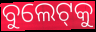
ବୁଲେଟ୍‌କୁ